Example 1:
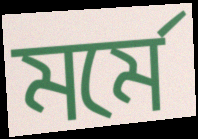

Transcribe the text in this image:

মৰ্মে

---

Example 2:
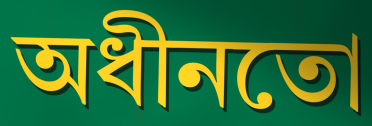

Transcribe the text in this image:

অধীনতো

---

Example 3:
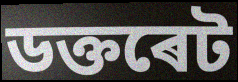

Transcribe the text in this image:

ডক্তৰেট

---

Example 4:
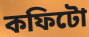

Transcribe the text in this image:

কফিটো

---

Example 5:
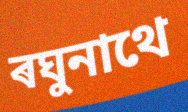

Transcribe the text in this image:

ৰঘুনাথে